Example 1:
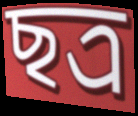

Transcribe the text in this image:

ছত্ৰ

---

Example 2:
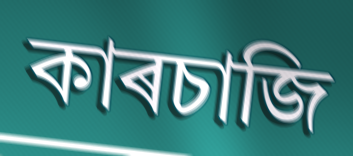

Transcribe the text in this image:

কাৰচাজি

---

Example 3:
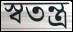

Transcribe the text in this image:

স্ৱতন্ত্ৰ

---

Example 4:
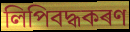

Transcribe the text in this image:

লিপিবদ্ধকৰণ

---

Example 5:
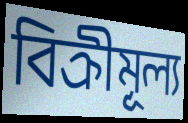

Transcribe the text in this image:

বিক্ৰীমূল্য